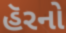
હૅરનો